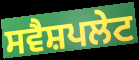
ਸਵੈਸ਼ਪਲੇਟ